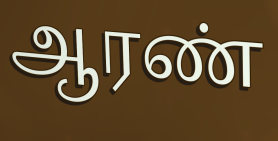
ஆரண்